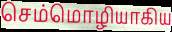
செம்மொழியாகிய